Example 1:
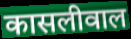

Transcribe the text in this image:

कासलीवाल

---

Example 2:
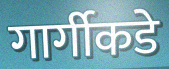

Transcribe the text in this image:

गार्गीकडे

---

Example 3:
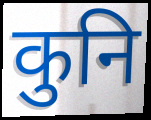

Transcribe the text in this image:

कुनि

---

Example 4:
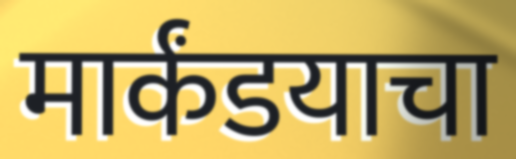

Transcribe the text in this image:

मार्कंडयाचा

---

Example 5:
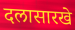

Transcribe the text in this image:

दलासारखे